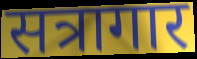
सत्रागार